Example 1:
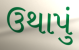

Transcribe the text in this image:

ઉથાપું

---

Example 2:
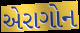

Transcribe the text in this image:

એરાગોન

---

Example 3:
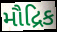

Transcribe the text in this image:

મૌદ્રિક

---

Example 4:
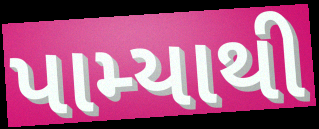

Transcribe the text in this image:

પામ્યાથી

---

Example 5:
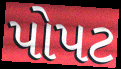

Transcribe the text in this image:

પોપટ